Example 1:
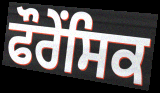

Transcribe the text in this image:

ਫੌਰੇਂਸਿਕ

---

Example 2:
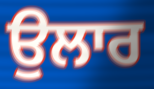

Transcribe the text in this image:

ਉਲਾਰ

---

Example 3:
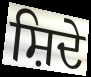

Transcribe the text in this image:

ਸ਼ਿਦੇ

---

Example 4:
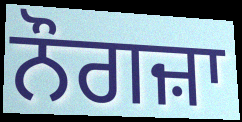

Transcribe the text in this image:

ਨੌਗਜ਼ਾ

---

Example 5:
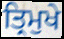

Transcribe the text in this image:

ਤ੍ਰਿਮੁਖੇ